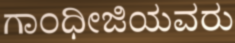
ಗಾಂಧೀಜಿಯವರು